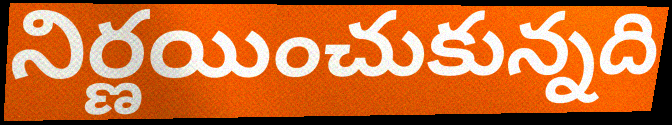
నిర్ణయించుకున్నది